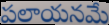
పలాయనమే